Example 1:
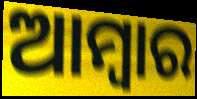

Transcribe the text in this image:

ଆମ୍ବାର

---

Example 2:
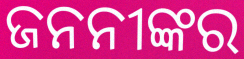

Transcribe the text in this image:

ଜନନୀଙ୍କର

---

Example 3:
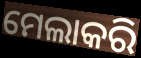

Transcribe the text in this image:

ମେଲାକରି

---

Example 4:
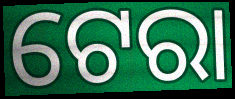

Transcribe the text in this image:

ଟେରା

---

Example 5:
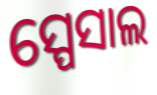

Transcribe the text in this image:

ସ୍ପେସାଲ